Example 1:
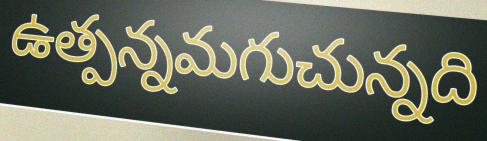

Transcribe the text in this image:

ఉత్పన్నమగుచున్నది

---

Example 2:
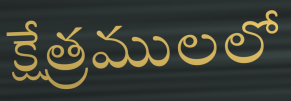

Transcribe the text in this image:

క్షేత్రములలో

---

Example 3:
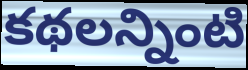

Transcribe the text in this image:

కథలన్నింటి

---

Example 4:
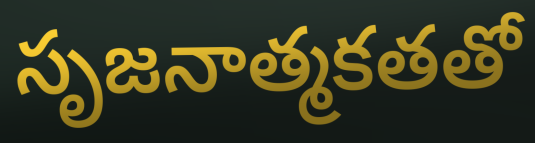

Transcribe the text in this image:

సృజనాత్మకతతో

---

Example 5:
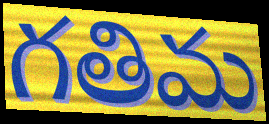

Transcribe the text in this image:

గతిమ